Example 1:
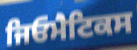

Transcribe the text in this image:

ਜਿਓਮੈਟਿਕਸ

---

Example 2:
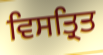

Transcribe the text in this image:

ਵਿਸਤ੍ਰਿਤ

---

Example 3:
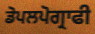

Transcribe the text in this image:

ਡੋਪਲਪੋਗ੍ਰਾਫੀ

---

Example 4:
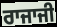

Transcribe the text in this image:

ਰਾਜਾਜੀ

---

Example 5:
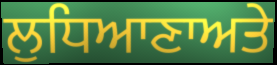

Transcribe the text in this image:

ਲੁਧਿਆਣਾਅਤੇ